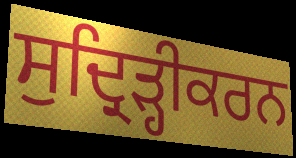
ਸੁਦ੍ਰਿੜ੍ਹੀਕਰਨ